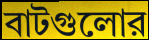
বাটগুলোর